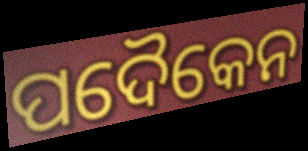
ପଦୈକେନ